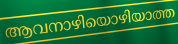
ആവനാഴിയൊഴിയാത്ത